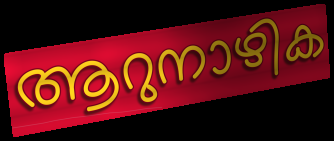
ആറുനാഴിക